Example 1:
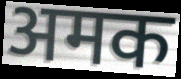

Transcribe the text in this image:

अमक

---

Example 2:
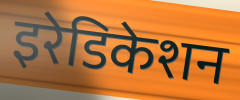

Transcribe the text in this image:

इरेडिकेशन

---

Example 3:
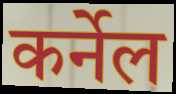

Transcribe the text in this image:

कर्नेल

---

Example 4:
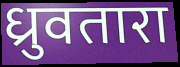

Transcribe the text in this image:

ध्रुवतारा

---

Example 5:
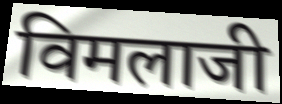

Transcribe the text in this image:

विमलाजी